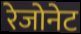
रेजोनेट